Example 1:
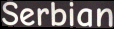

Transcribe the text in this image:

Serbian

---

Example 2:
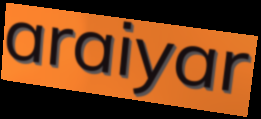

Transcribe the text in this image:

araiyar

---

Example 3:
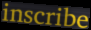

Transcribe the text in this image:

inscribe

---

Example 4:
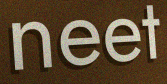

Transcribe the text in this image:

neet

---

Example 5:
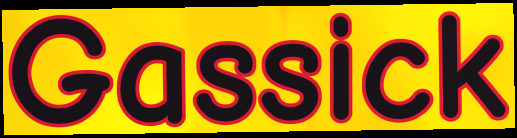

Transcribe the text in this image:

Gassick